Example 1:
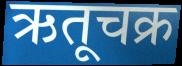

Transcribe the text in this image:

ऋतूचक्र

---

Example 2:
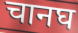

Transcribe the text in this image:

चानघ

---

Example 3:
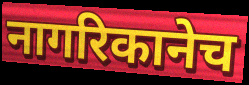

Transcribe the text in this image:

नागरिकानेच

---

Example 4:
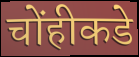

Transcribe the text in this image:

चोंहीकडे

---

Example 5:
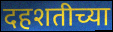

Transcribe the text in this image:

दहशतीच्या